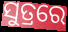
ସୁତ୍ରରେ